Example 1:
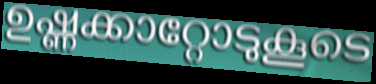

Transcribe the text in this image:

ഉഷ്ണക്കാറ്റോടുകൂടെ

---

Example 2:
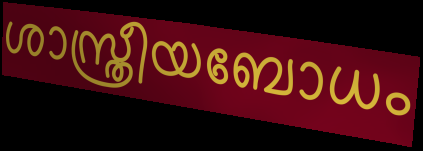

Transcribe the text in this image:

ശാസ്ത്രീയബോധം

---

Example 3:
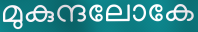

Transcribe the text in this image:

മുകുന്ദലോകേ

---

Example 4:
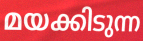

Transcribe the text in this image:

മയക്കിടുന്ന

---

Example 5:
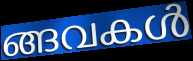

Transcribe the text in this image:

ങ്ങവകൾ